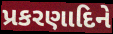
પ્રકરણાદિને